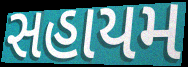
સહાયમ